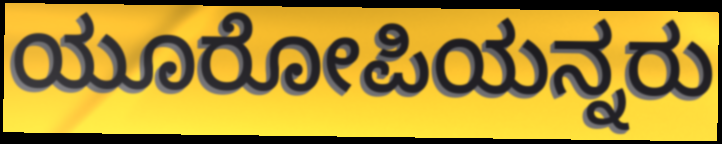
ಯೂರೋಪಿಯನ್ನರು